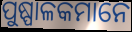
ପୁଷ୍ପାଳକମାନେ